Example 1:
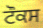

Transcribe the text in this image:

ਟੌਕਸ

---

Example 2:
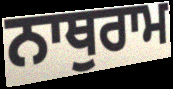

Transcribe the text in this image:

ਨਾਥੁਰਾਮ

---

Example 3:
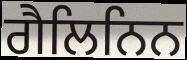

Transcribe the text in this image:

ਗੈਲਿਨਿਨ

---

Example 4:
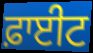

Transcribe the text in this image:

ਫ਼ਾਈਟ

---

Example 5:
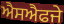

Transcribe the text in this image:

ਐਸਐਫਜੇ